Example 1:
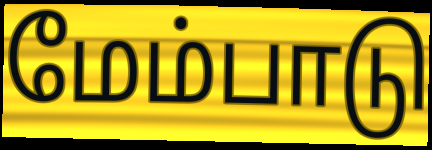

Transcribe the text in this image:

மேம்பாடு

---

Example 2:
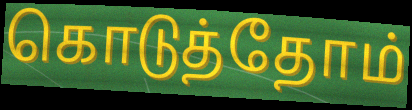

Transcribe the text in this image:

கொடுத்தோம்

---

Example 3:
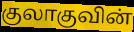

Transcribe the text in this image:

குலாகுவின்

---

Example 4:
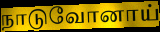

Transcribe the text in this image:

நாடுவோனாய்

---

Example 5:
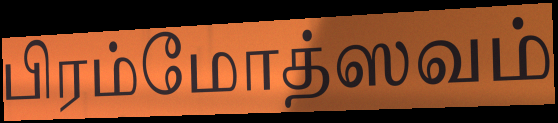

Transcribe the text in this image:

பிரம்மோத்ஸவம்